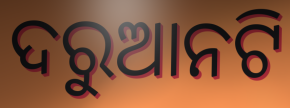
ଦରୁଆନଟି